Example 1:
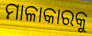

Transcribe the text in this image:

ମାଳାକାରକୁ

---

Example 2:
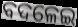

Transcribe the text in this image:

ବଦଳେଇ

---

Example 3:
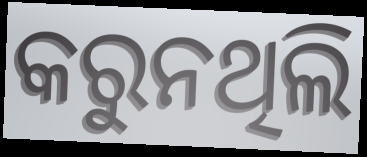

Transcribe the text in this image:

କରୁନଥିଲି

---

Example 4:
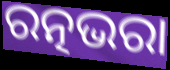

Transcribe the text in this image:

ରତ୍ନଭରା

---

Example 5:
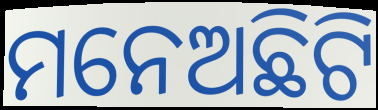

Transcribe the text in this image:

ମନେଅଛିଟି